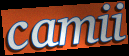
camii